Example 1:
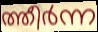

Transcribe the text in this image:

ത്തീർന്ന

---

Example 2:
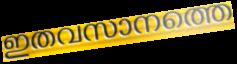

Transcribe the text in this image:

ഇതവസാനത്തെ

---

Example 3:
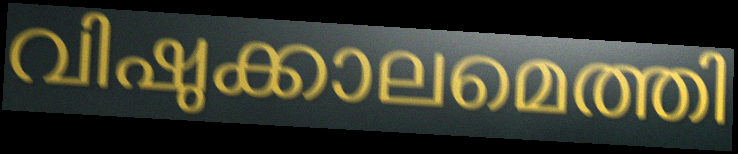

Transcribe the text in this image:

വിഷുക്കാലമെത്തി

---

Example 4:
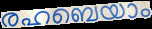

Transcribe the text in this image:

രഹബെയാം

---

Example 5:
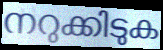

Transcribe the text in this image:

നറുക്കിടുക